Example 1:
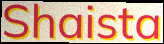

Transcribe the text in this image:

Shaista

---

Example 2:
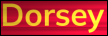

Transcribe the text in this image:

Dorsey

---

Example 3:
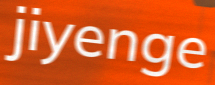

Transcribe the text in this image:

jiyenge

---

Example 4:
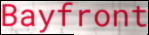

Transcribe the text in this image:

Bayfront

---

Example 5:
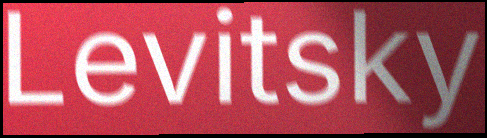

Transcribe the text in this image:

Levitsky